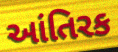
આંતિરક